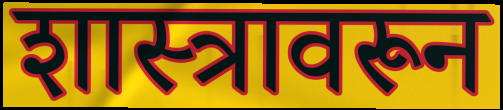
शास्त्रावरून